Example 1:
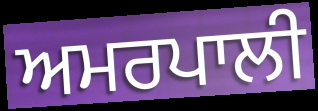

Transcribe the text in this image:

ਅਮਰਪਾਲੀ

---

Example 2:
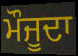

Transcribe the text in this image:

ਮੌਜੂਦਾ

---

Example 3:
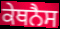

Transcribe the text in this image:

ਕੇਥਨੈਸ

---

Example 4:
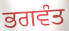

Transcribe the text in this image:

ਭਗਵੰਤ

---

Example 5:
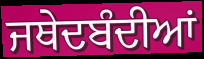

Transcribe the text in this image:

ਜਥੇਦਬੰਦੀਆਂ